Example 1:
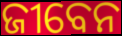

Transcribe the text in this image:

ଜୀବେନ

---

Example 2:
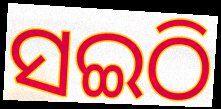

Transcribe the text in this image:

ସଇଠି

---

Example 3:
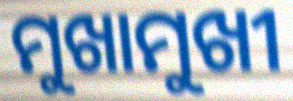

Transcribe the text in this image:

ମୁଖାମୁଖୀ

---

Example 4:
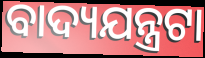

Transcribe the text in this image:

ବାଦ୍ୟଯନ୍ତ୍ରଟା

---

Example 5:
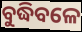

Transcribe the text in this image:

ବୁଦ୍ଧିବଳେ